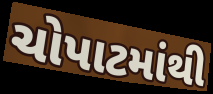
ચોપાટમાંથી